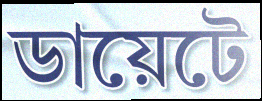
ডায়েটে